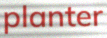
planter